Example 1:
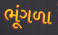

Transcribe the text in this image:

ભૂંગળા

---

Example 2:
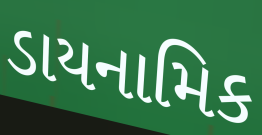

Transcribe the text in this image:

ડાયનામિક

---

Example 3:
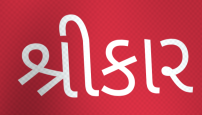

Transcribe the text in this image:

શ્રીકાર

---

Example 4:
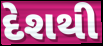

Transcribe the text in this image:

દેશથી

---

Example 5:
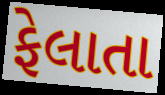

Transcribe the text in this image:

ફેલાતા